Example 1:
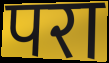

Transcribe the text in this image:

परा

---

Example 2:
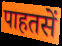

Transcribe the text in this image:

पाहतसें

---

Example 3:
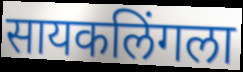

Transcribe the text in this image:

सायकलिंगला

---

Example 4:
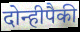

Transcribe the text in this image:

दोन्हीपैकी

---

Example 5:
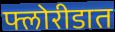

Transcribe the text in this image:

फ्लोरीडात